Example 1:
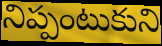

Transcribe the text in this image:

నిప్పంటుకుని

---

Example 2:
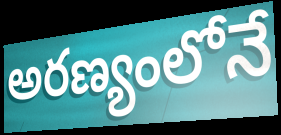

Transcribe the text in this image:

అరణ్యంలోనే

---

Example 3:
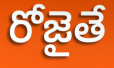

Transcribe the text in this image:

రోజైతే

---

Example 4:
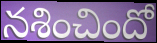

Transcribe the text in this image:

నశించిందో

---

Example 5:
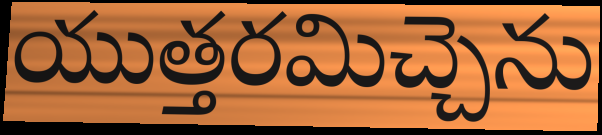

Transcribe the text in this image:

యుత్తరమిచ్చెను